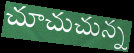
చూచుచున్న